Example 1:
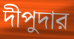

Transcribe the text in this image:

দীপুদার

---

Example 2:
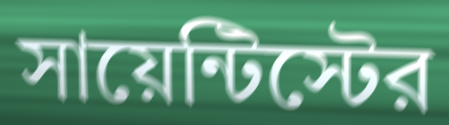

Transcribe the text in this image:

সায়েন্টিস্টের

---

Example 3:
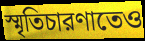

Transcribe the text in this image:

স্মৃতিচারণাতেও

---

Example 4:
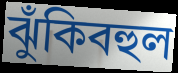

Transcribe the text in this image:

ঝুঁকিবহুল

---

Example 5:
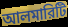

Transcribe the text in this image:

আলমারিটি